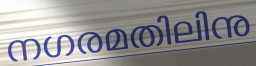
നഗരമതിലിനു